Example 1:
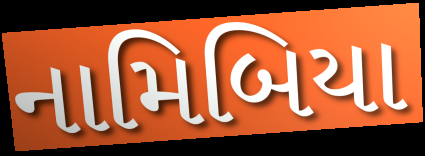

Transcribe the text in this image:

નામિબિયા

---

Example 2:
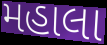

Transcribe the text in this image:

મહાલા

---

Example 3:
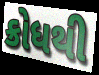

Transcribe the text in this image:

ક્રોધથી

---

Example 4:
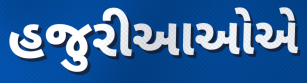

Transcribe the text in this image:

હજુરીઆઓએ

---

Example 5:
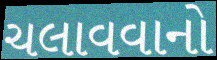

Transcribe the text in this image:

ચલાવવાનો